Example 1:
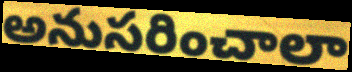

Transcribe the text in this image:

అనుసరించాలా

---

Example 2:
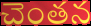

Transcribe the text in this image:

చెంతన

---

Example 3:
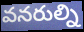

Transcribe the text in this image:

వనరుల్ని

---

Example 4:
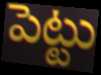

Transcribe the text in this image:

పెట్టు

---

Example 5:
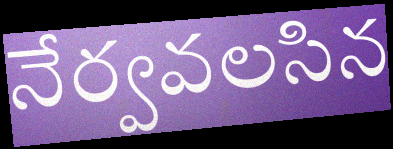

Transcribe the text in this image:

నేర్వవలసిన